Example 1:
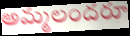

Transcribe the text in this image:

అమ్మలందరూ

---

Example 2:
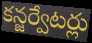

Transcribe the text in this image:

కన్జర్వేటర్లు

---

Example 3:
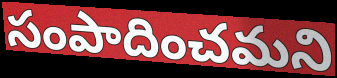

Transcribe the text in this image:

సంపాదించమని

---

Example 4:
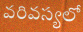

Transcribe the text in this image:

వరివస్యలో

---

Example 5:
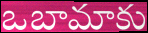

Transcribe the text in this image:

ఒబామాకు